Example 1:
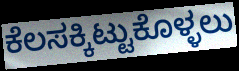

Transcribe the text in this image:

ಕೆಲಸಕ್ಕಿಟ್ಟುಕೊಳ್ಳಲು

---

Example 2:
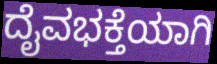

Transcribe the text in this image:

ದೈವಭಕ್ತೆಯಾಗಿ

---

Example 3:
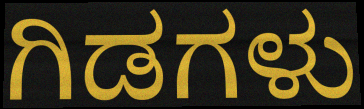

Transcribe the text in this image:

ಗಿಡಗಳು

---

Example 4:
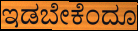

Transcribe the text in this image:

ಇಡಬೇಕೆಂದೂ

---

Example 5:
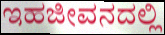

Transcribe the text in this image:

ಇಹಜೀವನದಲ್ಲಿ